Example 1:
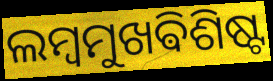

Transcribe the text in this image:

ଲମ୍ବମୁଖଵିଶିଷ୍ଟ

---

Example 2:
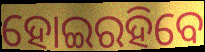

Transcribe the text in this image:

ହୋଇରହିବେ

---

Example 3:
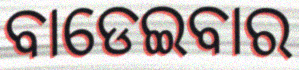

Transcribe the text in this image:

ବାଡେଇବାର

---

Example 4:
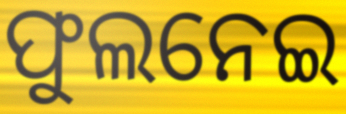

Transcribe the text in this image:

ଫୁଲନେଇ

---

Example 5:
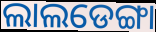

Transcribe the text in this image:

ଲାଲଡେଙ୍ଗା